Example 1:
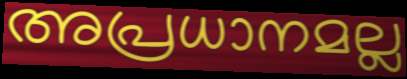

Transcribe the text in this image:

അപ്രധാനമല്ല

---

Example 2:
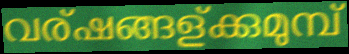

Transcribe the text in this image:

വര്ഷങ്ങള്ക്കുമുമ്പ്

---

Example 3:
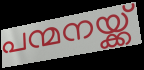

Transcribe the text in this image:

പന്മനയ്ക്ക്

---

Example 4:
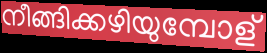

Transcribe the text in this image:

നീങ്ങിക്കഴിയുമ്പോള്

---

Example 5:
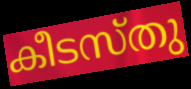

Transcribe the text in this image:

കീടസ്തു